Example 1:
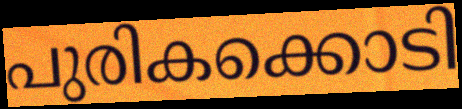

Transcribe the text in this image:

പുരികക്കൊടി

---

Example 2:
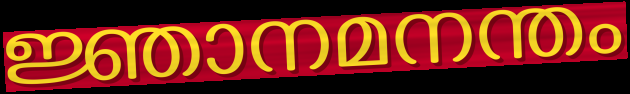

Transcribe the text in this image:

ജ്ഞാനമനന്തം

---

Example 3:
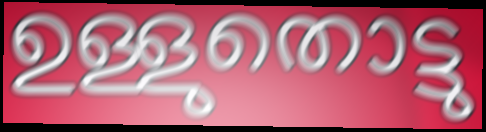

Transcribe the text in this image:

ഉള്ളുതൊട്ടു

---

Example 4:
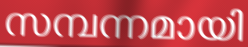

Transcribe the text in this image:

സമ്പന്നമായി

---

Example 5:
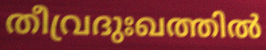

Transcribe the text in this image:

തീവ്രദുഃഖത്തിൽ